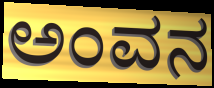
ಅಂವನ